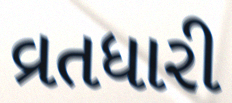
વ્રતધારી